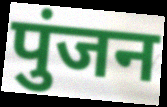
पुंजन